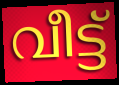
വീട്ട്